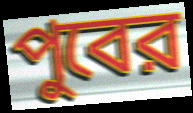
পুবের